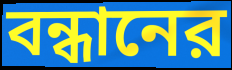
বন্ধানের